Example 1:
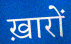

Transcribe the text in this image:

ख़ारों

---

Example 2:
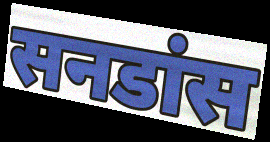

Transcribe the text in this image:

सनडांस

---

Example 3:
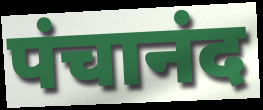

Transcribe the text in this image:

पंचानंद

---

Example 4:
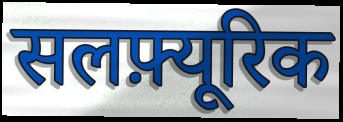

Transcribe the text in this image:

सलफ़्यूरिक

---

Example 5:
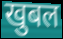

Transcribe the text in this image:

खुबल